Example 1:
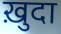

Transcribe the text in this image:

ख़ुदा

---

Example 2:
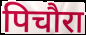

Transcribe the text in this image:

पिचौरा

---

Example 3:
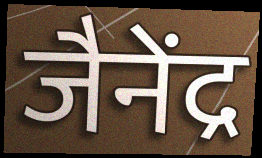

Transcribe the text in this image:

जैनेंद्र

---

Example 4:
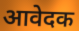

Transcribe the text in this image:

आवेदक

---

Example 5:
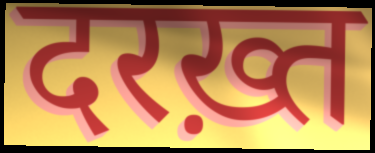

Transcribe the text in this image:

दरख़्त